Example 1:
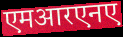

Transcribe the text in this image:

एमआरएनए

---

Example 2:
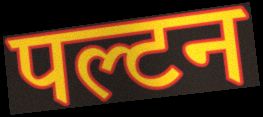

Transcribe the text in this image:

पल्टन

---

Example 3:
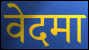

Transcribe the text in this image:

वेदमा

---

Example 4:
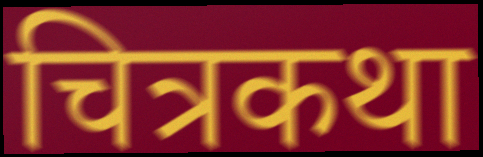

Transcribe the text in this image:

चित्रकथा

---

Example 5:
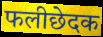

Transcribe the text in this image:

फलीछेदक